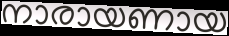
നാരായണായ